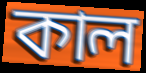
কাল